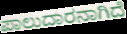
ಪಾಲುದಾರನಾಗಿದೆ